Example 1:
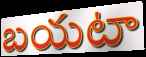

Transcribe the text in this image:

బయటా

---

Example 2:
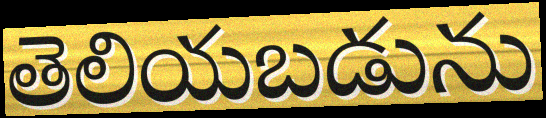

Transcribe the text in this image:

తెలియబడును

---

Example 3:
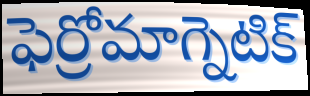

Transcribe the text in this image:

ఫెర్రోమాగ్నెటిక్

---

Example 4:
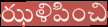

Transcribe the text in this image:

ఝళిపించి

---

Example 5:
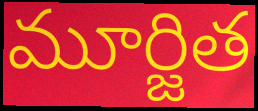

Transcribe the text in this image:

మూర్జిత